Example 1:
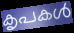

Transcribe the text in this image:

കൃപകൾ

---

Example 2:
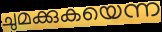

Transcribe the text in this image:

ചുമക്കുകയെന്ന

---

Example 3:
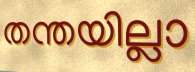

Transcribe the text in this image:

തന്തയില്ലാ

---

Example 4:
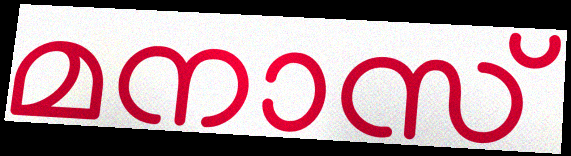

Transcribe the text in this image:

മനാസ്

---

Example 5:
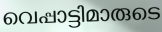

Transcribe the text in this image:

വെപ്പാട്ടിമാരുടെ